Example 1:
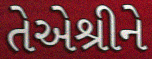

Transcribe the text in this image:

તેએશ્રીને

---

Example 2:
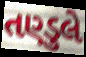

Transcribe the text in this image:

તણ્ડુલે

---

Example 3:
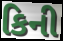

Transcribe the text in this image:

કિની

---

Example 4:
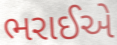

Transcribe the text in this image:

ભરાઈએ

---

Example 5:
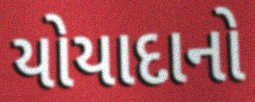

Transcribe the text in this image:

યોયાદાનો